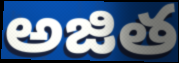
అజిత